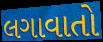
લગાવાતો